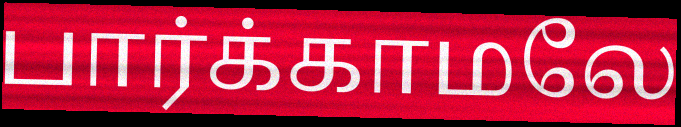
பார்க்காமலே